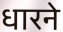
धारने